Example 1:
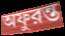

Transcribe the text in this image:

অফুরন্ত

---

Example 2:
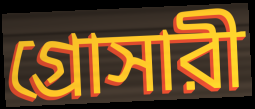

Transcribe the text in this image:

গ্রোসারী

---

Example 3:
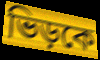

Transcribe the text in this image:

ভিড়কে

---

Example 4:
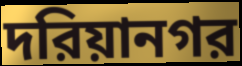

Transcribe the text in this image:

দরিয়ানগর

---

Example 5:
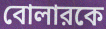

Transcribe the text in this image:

বোলারকে